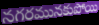
నగరమునకుపోయి